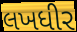
લખધીર